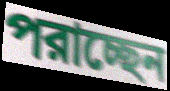
পরাচ্ছেন